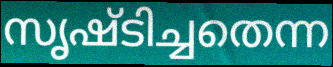
സൃഷ്ടിച്ചതെന്ന